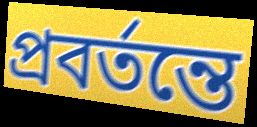
প্রবর্তন্তে